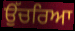
ਉੱਚਰਿਆ